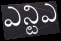
ఎన్టిఎ